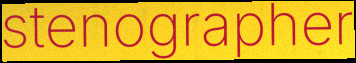
stenographer